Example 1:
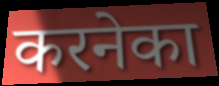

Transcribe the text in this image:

करनेका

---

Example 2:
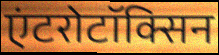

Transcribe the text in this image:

एंटरोटॉक्सिन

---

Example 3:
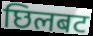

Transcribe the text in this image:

छिलबट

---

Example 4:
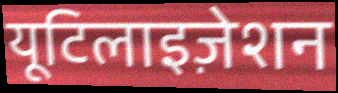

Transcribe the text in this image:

यूटिलाइज़ेशन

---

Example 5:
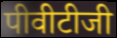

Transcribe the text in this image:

पीवीटीजी